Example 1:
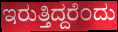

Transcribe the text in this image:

ಇರುತ್ತಿದ್ದರೆಂದು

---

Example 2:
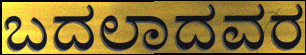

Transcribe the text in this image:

ಬದಲಾದವರ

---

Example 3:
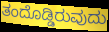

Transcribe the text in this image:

ತಂದೊಡ್ಡಿರುವುದು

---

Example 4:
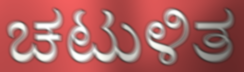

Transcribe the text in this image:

ಚಟುಳಿತ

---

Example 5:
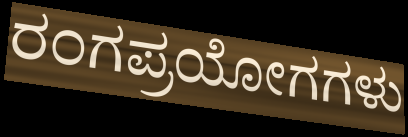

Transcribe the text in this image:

ರಂಗಪ್ರಯೋಗಗಳು